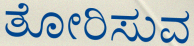
ತೋರಿಸುವ